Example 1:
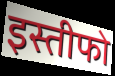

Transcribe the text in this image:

इस्तीफो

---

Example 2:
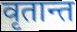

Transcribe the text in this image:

वृतान्त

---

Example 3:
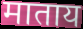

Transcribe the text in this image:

माताय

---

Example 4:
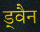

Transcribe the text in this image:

ड्वैन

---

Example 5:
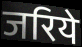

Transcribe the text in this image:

जरिये